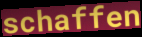
schaffen